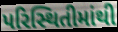
પરિસ્થિતીમાંથી